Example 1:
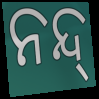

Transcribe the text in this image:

ନନ୍ଦ୍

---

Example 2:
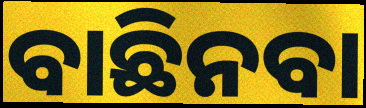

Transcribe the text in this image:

ବାଛିନବା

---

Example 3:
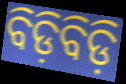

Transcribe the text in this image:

ବିଡ଼ିବିଡ଼ି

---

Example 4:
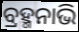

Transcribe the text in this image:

ବ୍ରହ୍ମନାଭି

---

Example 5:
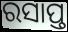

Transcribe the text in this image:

ରସାପ୍ତ